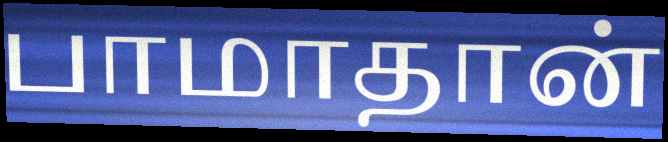
பாமாதான்